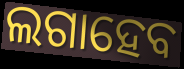
ଲଗାହେବ